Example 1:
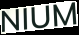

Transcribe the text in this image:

NIUM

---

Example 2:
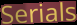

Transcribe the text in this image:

Serials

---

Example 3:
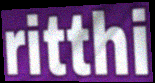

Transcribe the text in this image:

ritthi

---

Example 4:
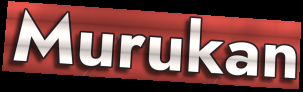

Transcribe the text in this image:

Murukan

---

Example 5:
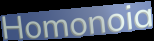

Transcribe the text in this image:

Homonoia